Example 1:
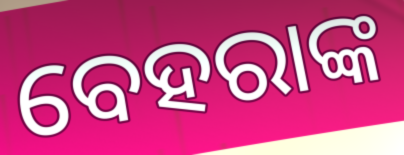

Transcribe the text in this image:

ବେହରାଙ୍କ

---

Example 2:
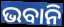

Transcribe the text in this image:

ଭବାନି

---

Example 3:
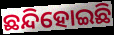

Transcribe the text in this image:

ଛନ୍ଦିହୋଇଛି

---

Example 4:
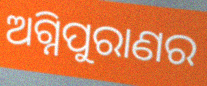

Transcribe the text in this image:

ଅଗ୍ନିପୁରାଣର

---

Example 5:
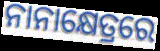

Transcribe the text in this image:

ନାନାକ୍ଷେତ୍ରରେ